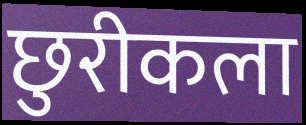
छुरीकला